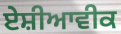
ਏਸ਼ੀਆਵੀਕ